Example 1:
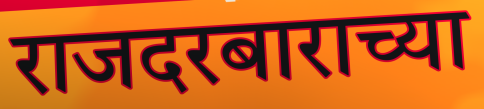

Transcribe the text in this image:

राजदरबाराच्या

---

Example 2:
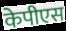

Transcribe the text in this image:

केपीएस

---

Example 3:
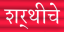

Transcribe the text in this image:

शर्थीचे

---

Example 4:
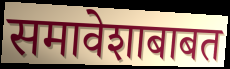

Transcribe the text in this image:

समावेशाबाबत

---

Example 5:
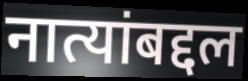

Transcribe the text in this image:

नात्यांबद्दल